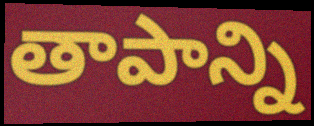
తాపాన్ని